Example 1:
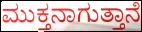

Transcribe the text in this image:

ಮುಕ್ತನಾಗುತ್ತಾನೆ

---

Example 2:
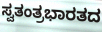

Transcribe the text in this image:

ಸ್ವತಂತ್ರಭಾರತದ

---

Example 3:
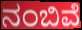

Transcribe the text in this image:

ನಂಬಿವೆ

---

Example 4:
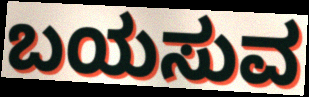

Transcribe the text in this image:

ಬಯಸುವ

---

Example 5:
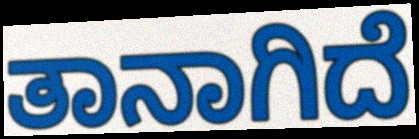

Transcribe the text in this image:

ತಾನಾಗಿದೆ